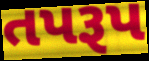
તપરૂપ